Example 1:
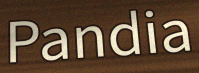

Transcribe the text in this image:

Pandia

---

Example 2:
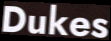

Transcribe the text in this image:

Dukes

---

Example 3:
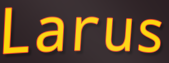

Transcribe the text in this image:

Larus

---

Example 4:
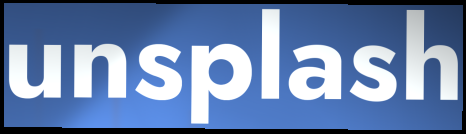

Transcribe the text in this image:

unsplash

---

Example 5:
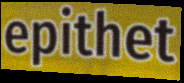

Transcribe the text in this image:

epithet